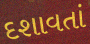
દશાવતાં